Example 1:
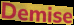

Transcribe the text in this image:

Demise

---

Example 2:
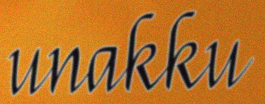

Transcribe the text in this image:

unakku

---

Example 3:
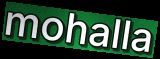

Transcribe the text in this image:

mohalla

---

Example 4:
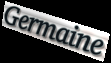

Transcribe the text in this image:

Germaine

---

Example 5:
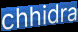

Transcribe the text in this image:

chhidra